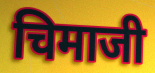
चिमाजी